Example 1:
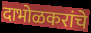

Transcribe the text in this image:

दाभोळकरांचे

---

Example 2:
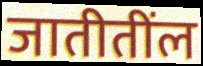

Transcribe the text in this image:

जातीतींल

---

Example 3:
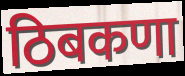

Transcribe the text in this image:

ठिबकणा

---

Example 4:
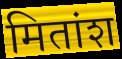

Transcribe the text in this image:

मितांश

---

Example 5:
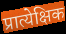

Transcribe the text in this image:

प्रात्येक्षिक